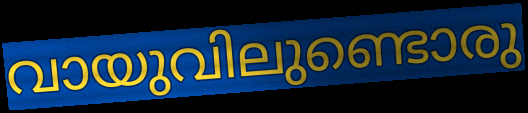
വായുവിലുണ്ടൊരു